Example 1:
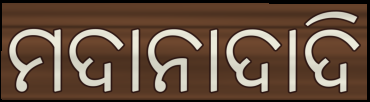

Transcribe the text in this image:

ମଦାନାଦାଦି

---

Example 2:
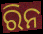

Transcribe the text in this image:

ରିନ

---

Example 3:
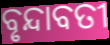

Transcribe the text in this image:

ବୃନ୍ଦାବତୀ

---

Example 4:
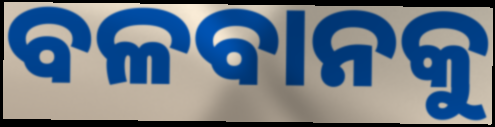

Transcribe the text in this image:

ବଳବାନକୁ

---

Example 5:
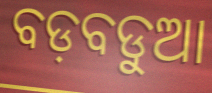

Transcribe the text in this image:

ବଡ଼ବଡୁଆ